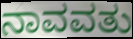
ನಾವವತು